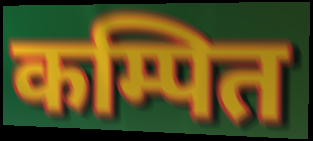
कम्पित